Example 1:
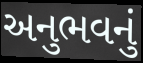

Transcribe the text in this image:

અનુભવનું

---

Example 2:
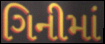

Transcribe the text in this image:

ગિનીમાં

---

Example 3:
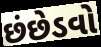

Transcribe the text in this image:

છંછેડવો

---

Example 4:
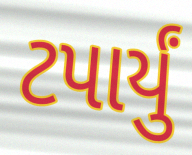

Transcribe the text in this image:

ટપાર્યું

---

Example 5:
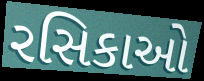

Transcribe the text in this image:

રસિકાઓ